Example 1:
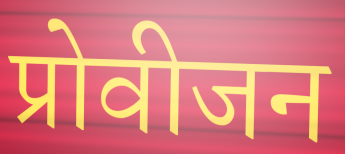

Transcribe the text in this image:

प्रोवीजन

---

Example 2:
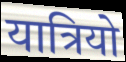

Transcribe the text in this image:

यात्रियो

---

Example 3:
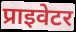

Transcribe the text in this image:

प्राइवेटर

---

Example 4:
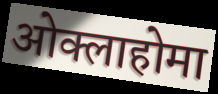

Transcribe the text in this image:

ओक्लाहोमा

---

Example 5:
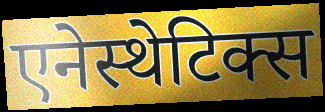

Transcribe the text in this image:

एनेस्थेटिक्स